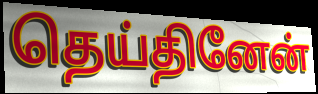
தெய்தினேன்